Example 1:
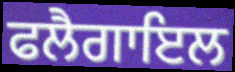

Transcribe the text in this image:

ਫਲੈਗਾਇਲ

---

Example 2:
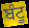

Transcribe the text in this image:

ਬੰਟੂ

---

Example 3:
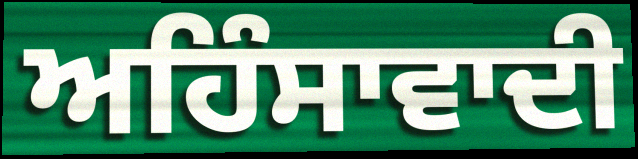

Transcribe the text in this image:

ਅਹਿੰਸਾਵਾਦੀ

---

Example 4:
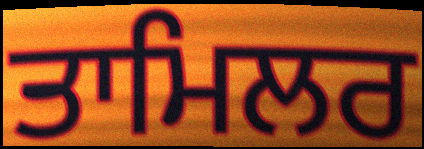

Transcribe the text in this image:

ਤਾਮਿਲਰ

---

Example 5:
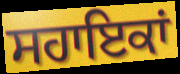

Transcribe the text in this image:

ਸਹਾਇਕਾਂ